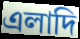
এলাদি